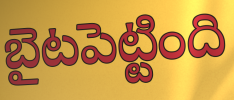
బైటపెట్టింది